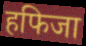
हफिजा